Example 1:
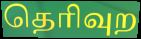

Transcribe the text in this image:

தெரிவுற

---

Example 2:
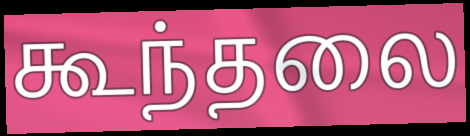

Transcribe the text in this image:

கூந்தலை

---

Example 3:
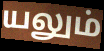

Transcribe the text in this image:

யலும்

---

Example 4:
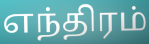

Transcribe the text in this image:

எந்திரம்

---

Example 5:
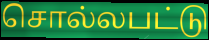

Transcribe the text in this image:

சொல்லபட்டு